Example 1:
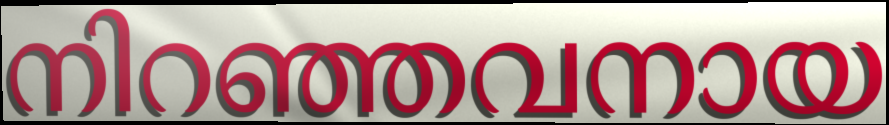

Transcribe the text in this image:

നിറഞ്ഞവനായ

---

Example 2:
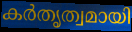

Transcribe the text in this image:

കർതൃത്വമായി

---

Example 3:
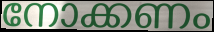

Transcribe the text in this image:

നോക്കണം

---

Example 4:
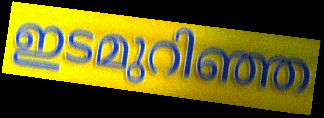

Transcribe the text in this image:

ഇടമുറിഞ്ഞ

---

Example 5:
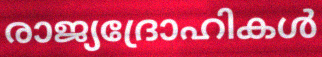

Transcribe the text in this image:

രാജ്യദ്രോഹികൾ